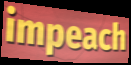
impeach